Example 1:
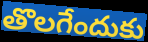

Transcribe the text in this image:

తొలగేందుకు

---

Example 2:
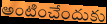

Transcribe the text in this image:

అంటించేందుకు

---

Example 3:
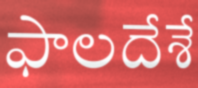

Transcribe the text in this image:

ఫాలదేశే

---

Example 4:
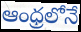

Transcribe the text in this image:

ఆంధ్రలోనే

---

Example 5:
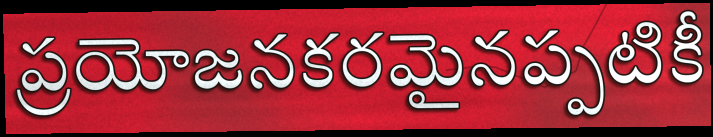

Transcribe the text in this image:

ప్రయోజనకరమైనప్పటికీ